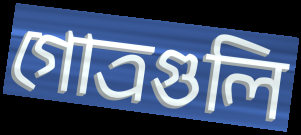
গোত্রগুলি